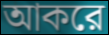
আকরে